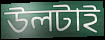
উলটাই